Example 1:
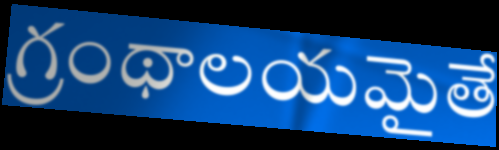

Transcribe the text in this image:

గ్రంథాలయమైతే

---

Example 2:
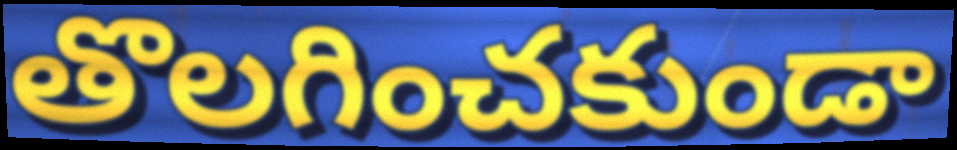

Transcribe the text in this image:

తొలగించకుండా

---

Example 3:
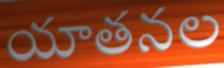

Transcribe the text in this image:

యాతనల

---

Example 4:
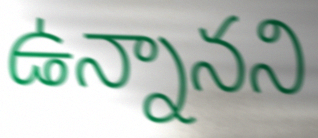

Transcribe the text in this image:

ఉన్నానని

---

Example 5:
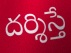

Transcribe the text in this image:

దర్శిస్తే